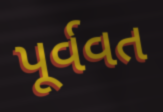
પૂર્વવત